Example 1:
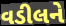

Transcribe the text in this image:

વડીલને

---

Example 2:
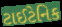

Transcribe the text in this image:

ટાઈટેનિક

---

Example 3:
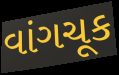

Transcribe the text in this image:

વાંગચૂક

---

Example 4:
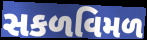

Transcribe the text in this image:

સકળવિમળ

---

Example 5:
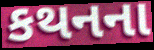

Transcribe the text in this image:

કથનના